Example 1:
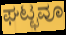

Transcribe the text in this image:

ಘಟ್ಟವೂ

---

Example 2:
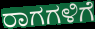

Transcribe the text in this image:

ರಾಗಗಳಿಗೆ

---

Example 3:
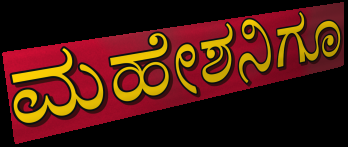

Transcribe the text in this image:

ಮಹೇಶನಿಗೂ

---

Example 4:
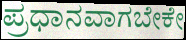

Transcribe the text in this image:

ಪ್ರಧಾನವಾಗಬೇಕೇ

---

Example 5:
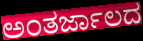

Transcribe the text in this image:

ಅಂತರ್ಜಾಲದ